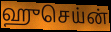
ஹுசெய்ன்